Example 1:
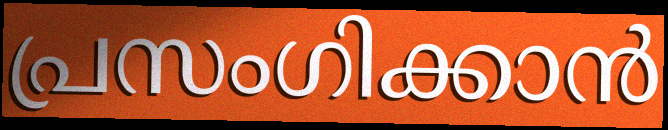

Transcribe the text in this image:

പ്രസംഗിക്കാൻ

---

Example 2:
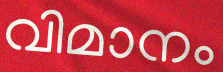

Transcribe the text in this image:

വിമാനം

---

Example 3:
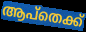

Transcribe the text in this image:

ആപ്തെക്ക്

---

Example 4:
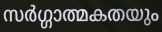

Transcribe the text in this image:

സർഗ്ഗാത്മകതയും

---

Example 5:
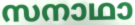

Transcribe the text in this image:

സനാഥാ